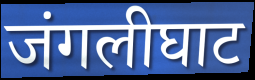
जंगलीघाट